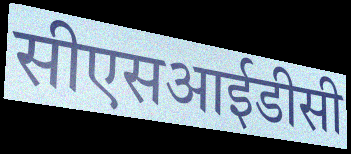
सीएसआईडीसी